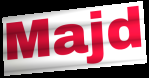
Majd